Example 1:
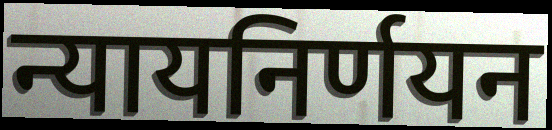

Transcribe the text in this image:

न्यायनिर्णयन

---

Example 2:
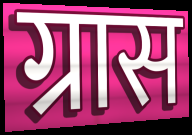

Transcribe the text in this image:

ग्रास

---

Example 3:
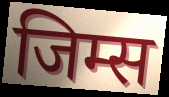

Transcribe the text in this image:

जिम्स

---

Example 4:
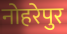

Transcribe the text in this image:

नोहरेपुर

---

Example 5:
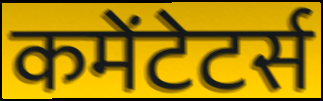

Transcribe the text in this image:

कमेंटेटर्स